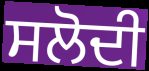
ਸਲੋਦੀ